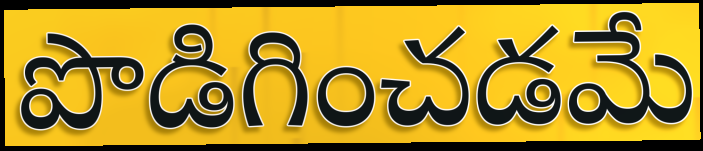
పొడిగించడమే